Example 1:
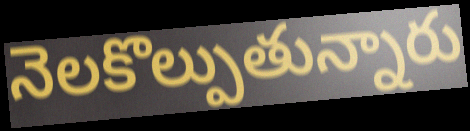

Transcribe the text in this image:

నెలకొల్పుతున్నారు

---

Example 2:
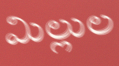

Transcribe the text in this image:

మిల్లుల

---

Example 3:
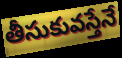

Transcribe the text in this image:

తీసుకువస్తేనే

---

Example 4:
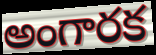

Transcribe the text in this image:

అంగారక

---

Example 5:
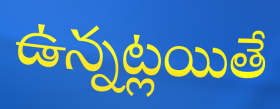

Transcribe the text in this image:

ఉన్నట్లయితే